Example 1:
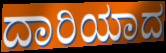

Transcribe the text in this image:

ದಾರಿಯಾದ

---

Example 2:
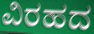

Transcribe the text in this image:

ವಿರಹದ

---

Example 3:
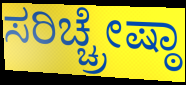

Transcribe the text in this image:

ಸರಿಚ್ಚ್ರೇಷ್ಠಾ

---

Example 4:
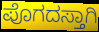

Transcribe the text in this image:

ಪೊಗದಸ್ತಾಗಿ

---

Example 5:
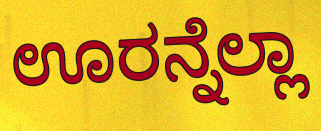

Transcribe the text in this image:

ಊರನ್ನೆಲ್ಲಾ